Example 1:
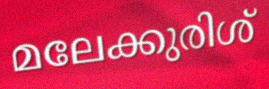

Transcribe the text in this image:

മലേക്കുരിശ്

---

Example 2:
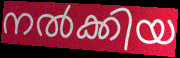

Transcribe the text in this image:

നൽക്കിയ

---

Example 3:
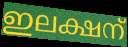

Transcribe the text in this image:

ഇലക്ഷന്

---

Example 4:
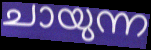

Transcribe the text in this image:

ചായുന്ന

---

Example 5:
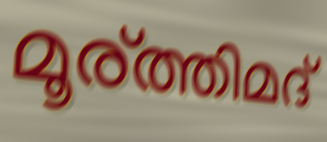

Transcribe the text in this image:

മൂര്ത്തിമദ്